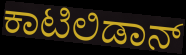
ಕಾಟಿಲಿಡಾನ್